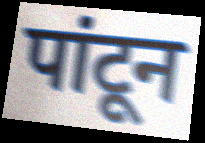
पांटून